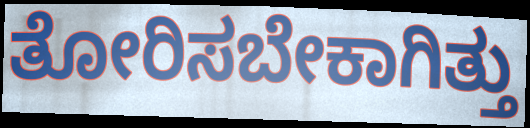
ತೋರಿಸಬೇಕಾಗಿತ್ತು